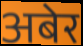
अबेर